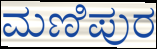
ಮಣಿಪುರ